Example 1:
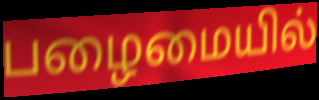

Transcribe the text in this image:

பழைமையில்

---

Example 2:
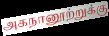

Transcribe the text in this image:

அகநானூற்றுக்கு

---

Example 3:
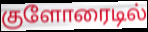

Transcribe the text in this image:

குளோரைடில்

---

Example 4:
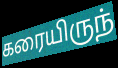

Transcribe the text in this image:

கரையிருந்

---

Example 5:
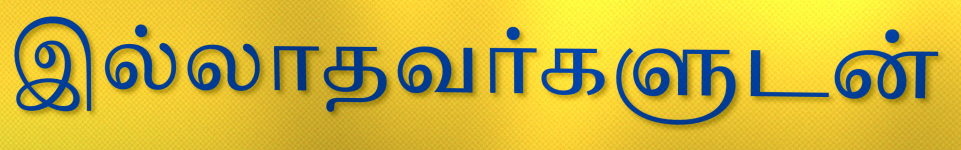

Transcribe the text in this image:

இல்லாதவர்களுடன்